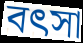
বৎসা